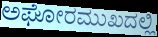
ಅಘೋರಮುಖದಲ್ಲಿ